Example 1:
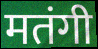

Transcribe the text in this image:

मतंगी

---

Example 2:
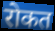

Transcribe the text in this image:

रोकत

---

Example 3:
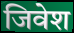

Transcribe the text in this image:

जिवेश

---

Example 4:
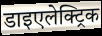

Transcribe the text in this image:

डाइएलेक्ट्रिक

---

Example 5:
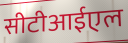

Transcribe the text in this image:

सीटीआईएल